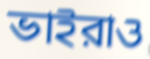
ভাইরাও